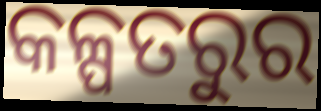
କଳ୍ପତରୁର